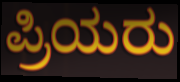
ಪ್ರಿಯರು